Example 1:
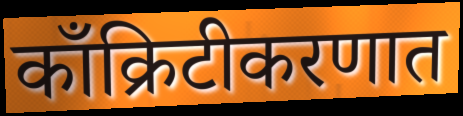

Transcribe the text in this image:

काँक्रिटीकरणात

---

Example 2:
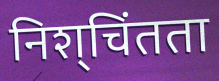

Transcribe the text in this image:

निश्चिंतता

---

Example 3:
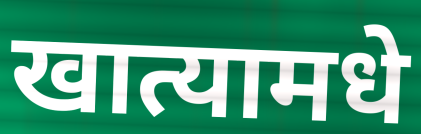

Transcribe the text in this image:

खात्यामधे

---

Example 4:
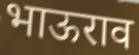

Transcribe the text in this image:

भाऊराव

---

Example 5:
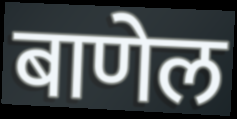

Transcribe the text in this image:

बाणेल